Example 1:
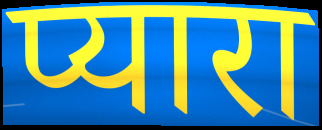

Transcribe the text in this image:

प्यारा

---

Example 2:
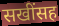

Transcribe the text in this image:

सखींसह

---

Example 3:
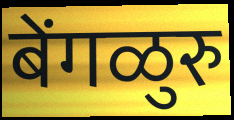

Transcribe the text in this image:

बेंगळुरु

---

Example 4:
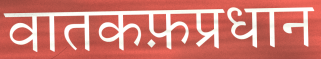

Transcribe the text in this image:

वातकफ़प्रधान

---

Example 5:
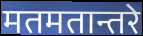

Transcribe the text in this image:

मतमतान्तरे